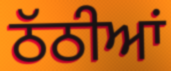
ਠੱਠੀਆਂ